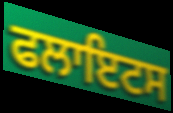
ਫਲਾਇਟਸ